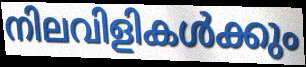
നിലവിളികൾക്കും